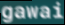
gawai